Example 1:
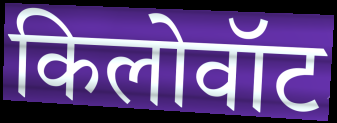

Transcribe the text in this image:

किलोवॉट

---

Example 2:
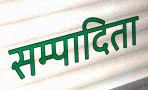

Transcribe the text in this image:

सम्पादिता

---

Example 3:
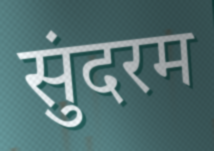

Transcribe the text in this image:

सुंदरम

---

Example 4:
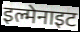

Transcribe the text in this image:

इल्मेनाइट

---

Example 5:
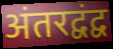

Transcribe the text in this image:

अंतरद्वंद्व